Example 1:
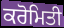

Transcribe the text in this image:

ਕਰੋਮਿਤੀ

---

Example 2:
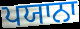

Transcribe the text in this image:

ਪਯਾਨਾ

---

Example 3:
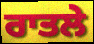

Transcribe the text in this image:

ਰਾਤਲੇ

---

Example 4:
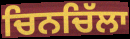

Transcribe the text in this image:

ਚਿਨਚਿੱਲਾ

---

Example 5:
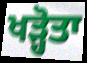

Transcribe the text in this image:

ਖੜ੍ਹੋਤਾ